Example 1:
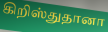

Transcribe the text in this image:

கிறிஸ்துதானா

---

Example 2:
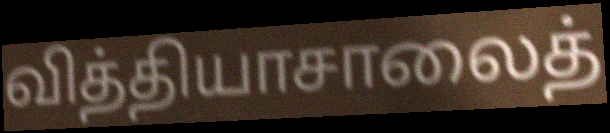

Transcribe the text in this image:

வித்தியாசாலைத்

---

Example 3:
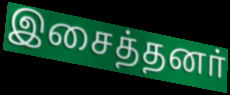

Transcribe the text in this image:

இசைத்தனர்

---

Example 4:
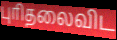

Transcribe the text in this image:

புரிதலைவிட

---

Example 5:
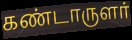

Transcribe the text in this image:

கண்டாருளர்